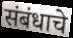
संबंधाचे